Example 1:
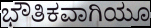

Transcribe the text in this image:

ಭೌತಿಕವಾಗಿಯೂ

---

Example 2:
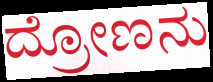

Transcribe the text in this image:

ದ್ರೋಣನು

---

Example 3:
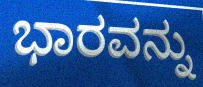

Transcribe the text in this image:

ಭಾರವನ್ನು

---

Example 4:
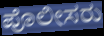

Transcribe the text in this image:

ಪೊಲೀಸರು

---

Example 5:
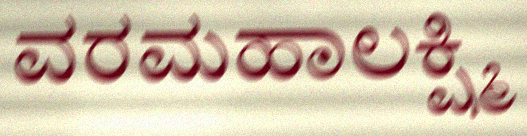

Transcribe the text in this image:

ವರಮಹಾಲಕ್ಷ್ಮಿ